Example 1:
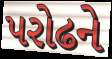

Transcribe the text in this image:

પરોઢને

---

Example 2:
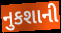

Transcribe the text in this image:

નુકશાની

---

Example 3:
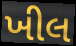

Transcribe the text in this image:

ખીલ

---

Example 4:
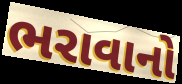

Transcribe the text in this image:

ભરાવાનો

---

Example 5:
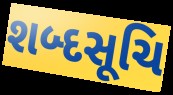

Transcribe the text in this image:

શબ્દસૂચિ